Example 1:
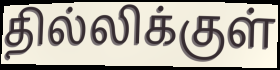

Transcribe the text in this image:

தில்லிக்குள்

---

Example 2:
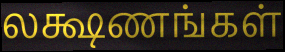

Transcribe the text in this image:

லக்ஷணங்கள்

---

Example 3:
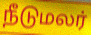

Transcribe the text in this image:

நீடுமலர்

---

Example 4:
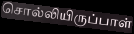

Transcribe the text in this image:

சொல்லியிருப்பாள்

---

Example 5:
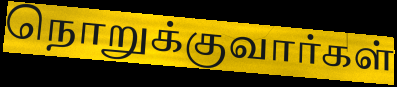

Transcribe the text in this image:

நொறுக்குவார்கள்